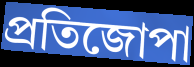
প্ৰতিজোপা